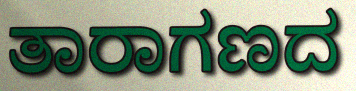
ತಾರಾಗಣದ